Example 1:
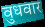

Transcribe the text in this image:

वुधवार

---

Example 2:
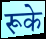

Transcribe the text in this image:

रूके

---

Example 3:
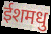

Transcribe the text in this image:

ईशमधु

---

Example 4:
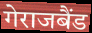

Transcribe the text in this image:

गेराजबैंड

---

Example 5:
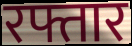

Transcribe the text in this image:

रफ्तार